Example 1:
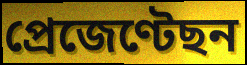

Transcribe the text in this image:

প্ৰেজেণ্টেছন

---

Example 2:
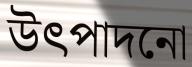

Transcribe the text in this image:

উৎপাদনো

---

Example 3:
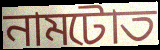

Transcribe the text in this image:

নামটোত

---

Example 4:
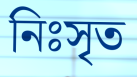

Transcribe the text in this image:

নিঃসৃত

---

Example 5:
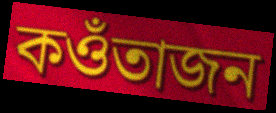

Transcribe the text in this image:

কওঁতাজন